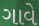
ગાવે